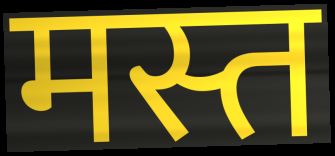
मस्‍त